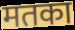
मतका